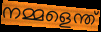
നമ്മളെന്ത്